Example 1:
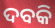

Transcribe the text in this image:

ଦବକି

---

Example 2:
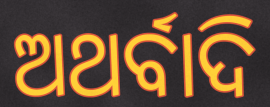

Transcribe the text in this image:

ଅଥର୍ବାଦି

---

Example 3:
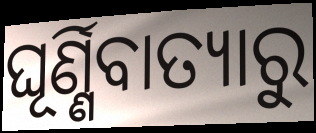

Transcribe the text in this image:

ଘୂର୍ଣ୍ଣିବାତ୍ୟାରୁ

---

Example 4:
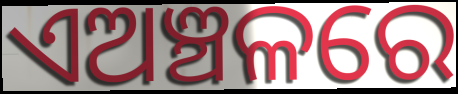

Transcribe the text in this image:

ଏଅଞ୍ଚଳରେ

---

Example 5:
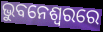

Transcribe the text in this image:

ଭୁବନେଶ୍ବରରେ